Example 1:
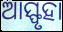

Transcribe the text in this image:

ଆସ୍ଫୃହା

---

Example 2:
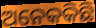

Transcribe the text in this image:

ଅନେକକିଛି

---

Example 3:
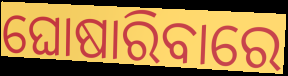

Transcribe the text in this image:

ଘୋଷାରିବାରେ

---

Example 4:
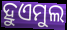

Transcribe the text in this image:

ହୁଏମୁଲ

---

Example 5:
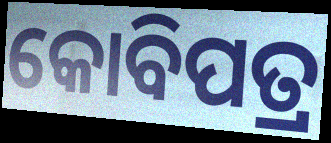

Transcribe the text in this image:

କୋବିପତ୍ର